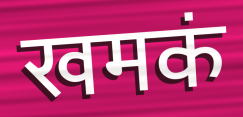
खमकं